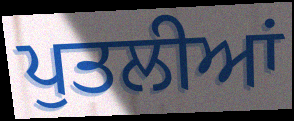
ਪੁਤਲੀਆਂ